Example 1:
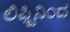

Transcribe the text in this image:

ಲಿಫ್ಟಿನಿಂದ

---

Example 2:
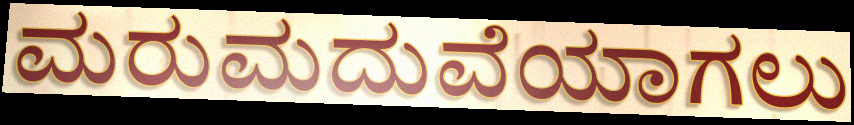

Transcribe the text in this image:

ಮರುಮದುವೆಯಾಗಲು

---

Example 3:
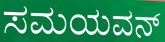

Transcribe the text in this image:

ಸಮಯವನ್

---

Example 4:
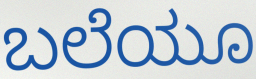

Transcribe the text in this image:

ಬಲೆಯೂ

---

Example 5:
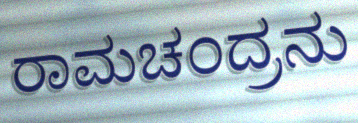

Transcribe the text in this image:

ರಾಮಚಂದ್ರನು